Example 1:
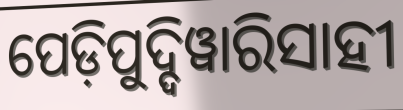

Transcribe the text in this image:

ପେଡ଼ିପୁଦ୍ଦିୱାରିସାହୀ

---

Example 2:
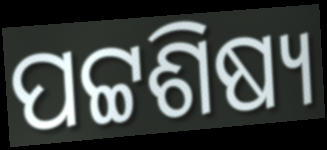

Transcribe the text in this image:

ପଟ୍ଟଶିଷ୍ୟ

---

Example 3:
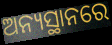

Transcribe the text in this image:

ଅନ୍ୟସ୍ଥାନରେ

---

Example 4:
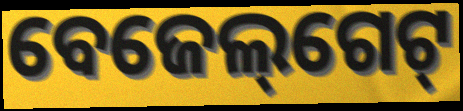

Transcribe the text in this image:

ବେଜେଲ୍‌ଗେଟ୍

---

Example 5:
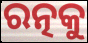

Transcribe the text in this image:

ରତ୍ନକୁ